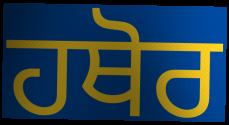
ਹਥੋਰ